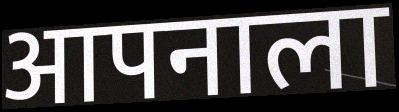
आपनाला